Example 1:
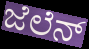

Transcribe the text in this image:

ಜೆಲೆನ್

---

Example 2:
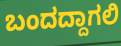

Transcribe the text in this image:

ಬಂದದ್ದಾಗಲಿ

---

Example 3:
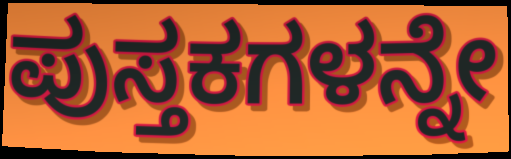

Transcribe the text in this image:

ಪುಸ್ತಕಗಳನ್ನೇ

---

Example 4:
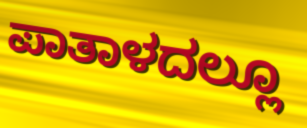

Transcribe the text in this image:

ಪಾತಾಳದಲ್ಲೂ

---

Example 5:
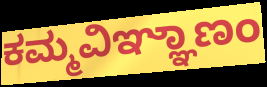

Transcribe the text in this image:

ಕಮ್ಮವಿಞ್ಞಾಣಂ